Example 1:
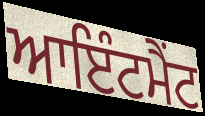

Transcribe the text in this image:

ਆਇੰਟਮੈਂਟ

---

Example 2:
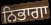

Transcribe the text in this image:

ਨਿਭਾਗਾ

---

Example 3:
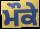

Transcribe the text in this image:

ਮੌਕੇ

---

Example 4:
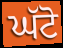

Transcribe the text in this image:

ਘੱਟੋ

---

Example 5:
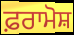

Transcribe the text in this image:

ਫ਼ਰਾਮੋਸ਼